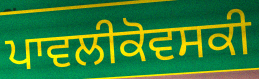
ਪਾਵਲੀਕੋਵਸਕੀ